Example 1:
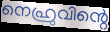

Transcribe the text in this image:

നെഹ്രുവിന്റെ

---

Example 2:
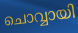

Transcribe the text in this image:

ചൊവ്വായി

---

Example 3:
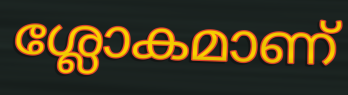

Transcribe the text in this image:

ശ്ലോകമാണ്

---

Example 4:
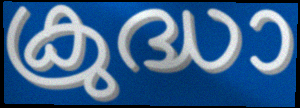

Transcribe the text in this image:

ക്രുദ്ധാ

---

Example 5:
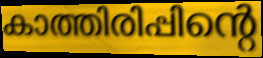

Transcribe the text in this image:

കാത്തിരിപ്പിന്റെ